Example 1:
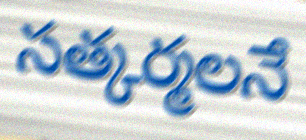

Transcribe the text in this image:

సత్కర్మలనే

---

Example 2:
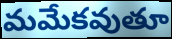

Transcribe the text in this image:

మమేకవుతూ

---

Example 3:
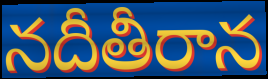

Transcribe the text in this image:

నదీతీరాన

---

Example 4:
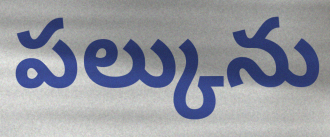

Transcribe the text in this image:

పల్కును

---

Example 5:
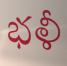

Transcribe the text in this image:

భళీ